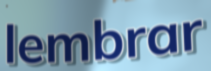
lembrar